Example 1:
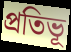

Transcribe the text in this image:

প্রতিভূ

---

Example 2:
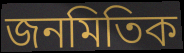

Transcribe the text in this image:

জনমিতিক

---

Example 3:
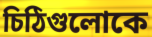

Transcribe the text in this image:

চিঠিগুলোকে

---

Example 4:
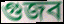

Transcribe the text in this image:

গুজব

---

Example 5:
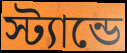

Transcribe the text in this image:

স্ট্যান্ডে